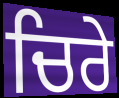
ਚਿਰੇ